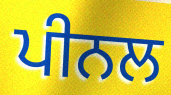
ਪੀਨਲ